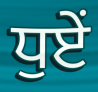
ਧੁਏਂ